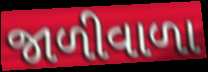
જાળીવાળા